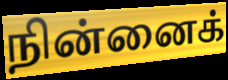
நின்னைக்